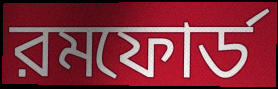
রমফোর্ড